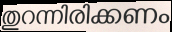
തുറന്നിരിക്കണം